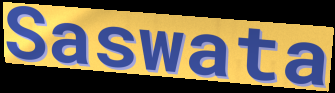
Saswata